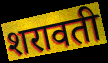
शरावती